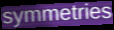
symmetries